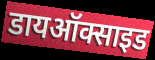
डायऑक्साइड